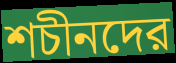
শচীনদের